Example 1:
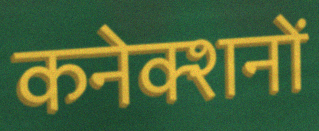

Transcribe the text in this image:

कनेक्शनों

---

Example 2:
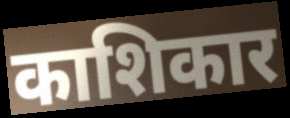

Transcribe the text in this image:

काशिकार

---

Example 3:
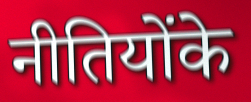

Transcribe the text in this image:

नीतियोंके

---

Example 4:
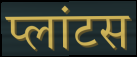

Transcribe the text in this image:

प्लांटस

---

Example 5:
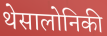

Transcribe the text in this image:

थेसालोनिकी